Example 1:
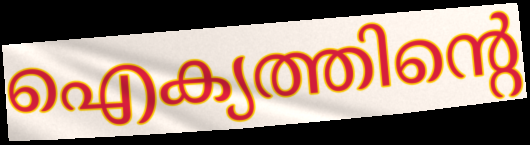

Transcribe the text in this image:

ഐക്യത്തിന്റെ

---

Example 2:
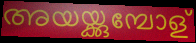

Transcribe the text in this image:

അയയ്ക്കുമ്പോള്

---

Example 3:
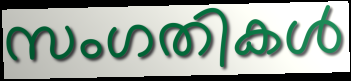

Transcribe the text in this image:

സംഗതികൾ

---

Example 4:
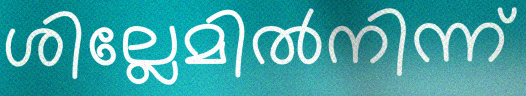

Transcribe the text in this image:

ശില്ലേമിൽനിന്ന്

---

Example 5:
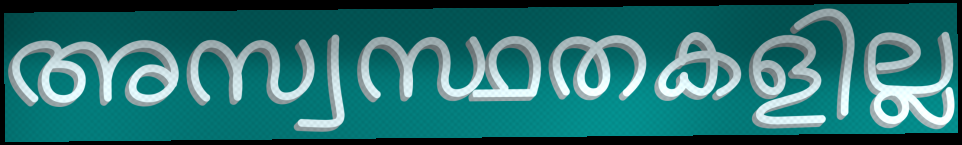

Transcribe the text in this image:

അസ്വസ്ഥതകളില്ല